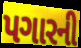
પગારની